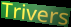
Trivers